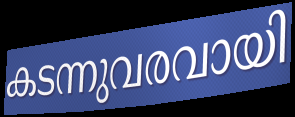
കടന്നുവരവായി